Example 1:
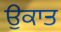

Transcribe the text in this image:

ਉਕਾਤ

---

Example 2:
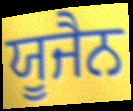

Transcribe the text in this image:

ਯੂਜੈਨ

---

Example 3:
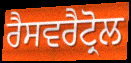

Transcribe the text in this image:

ਰੈਸਵਰੈਟ੍ਰੋਲ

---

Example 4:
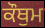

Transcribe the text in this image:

ਕੌਥੁਮ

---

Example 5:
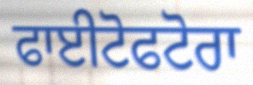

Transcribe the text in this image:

ਫਾਈਟੋਫਟੋਰਾ